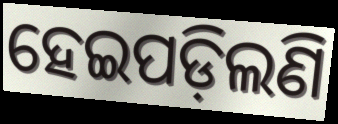
ହେଇପଡ଼ିଲଣି